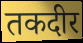
तकदीर